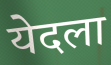
येदला